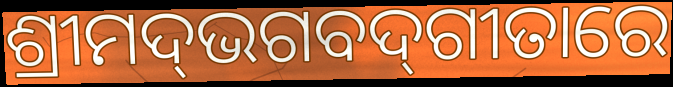
ଶ୍ରୀମଦ୍‌ଭଗବଦ୍‌ଗୀତାରେ